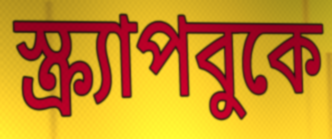
স্ক্র্যাপবুকে